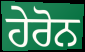
ਹੇਰੋਨ